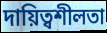
দায়িত্বশীলতা